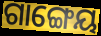
ଗାଙ୍ଗେୟ